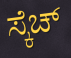
ಸ್ಕೆಚ್